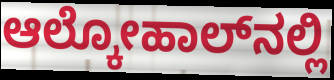
ಆಲ್ಕೋಹಾಲ್‌ನಲ್ಲಿ